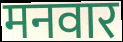
मनवार